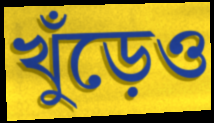
খুঁড়েও